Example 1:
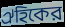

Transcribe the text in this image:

ঐহিকের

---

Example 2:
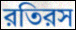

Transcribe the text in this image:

রতিরস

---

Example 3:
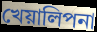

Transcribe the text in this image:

খেয়ালিপনা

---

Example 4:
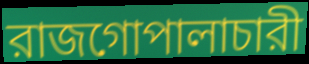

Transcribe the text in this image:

রাজগোপালাচারী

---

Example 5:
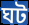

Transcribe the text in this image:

ঘট